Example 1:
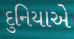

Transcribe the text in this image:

દુનિયાએ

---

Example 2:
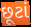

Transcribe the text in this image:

છૂટાં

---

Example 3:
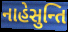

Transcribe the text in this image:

નાહેસુન્તિ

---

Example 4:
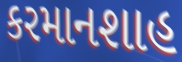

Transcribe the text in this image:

કરમાનશાહ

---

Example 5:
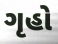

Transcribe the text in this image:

ગૃહો